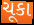
ચૂકા